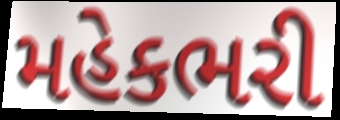
મહેકભરી